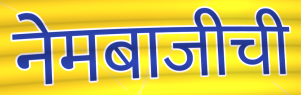
नेमबाजीची